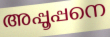
അപ്പൂപ്പനെ